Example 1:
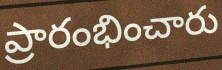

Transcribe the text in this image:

ప్రారంభించారు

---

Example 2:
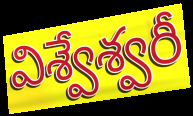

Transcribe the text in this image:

విశ్వేశ్వరీ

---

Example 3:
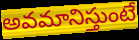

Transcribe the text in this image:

అవమానిస్తుంటే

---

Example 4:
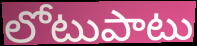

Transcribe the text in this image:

లోటుపాటు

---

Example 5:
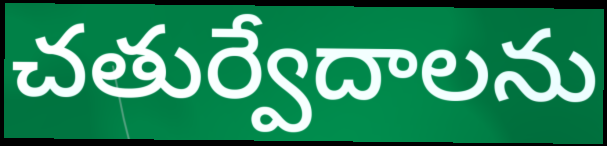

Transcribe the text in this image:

చతుర్వేదాలను